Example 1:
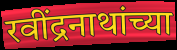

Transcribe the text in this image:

रवींद्रनाथांच्या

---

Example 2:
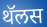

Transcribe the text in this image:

थॅलस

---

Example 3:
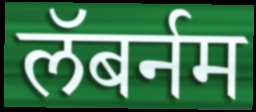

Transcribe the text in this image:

लॅबर्नम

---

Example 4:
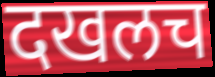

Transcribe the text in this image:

दखलच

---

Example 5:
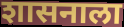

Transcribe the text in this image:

शासनाला